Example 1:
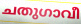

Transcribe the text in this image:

ചതുഗാവീ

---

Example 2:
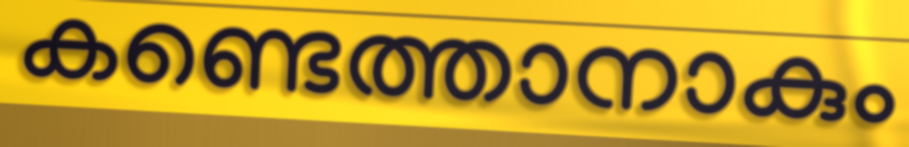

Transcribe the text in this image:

കണ്ടെത്താനാകും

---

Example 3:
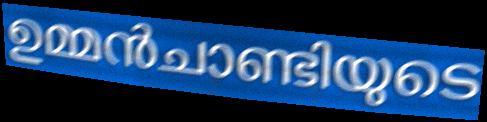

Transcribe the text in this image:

ഉമ്മൻചാണ്ടിയുടെ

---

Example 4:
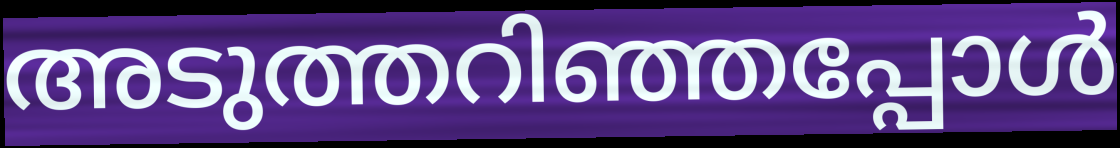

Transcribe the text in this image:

അടുത്തറിഞ്ഞപ്പോൾ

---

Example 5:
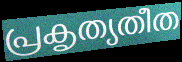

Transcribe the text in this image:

പ്രകൃത്യതീത